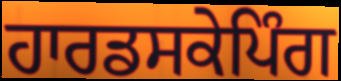
ਹਾਰਡਸਕੇਪਿੰਗ